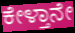
ಕೇಳ್ತಾನೇ